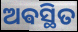
ଅଵସ୍ଥିତ